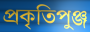
প্রকৃতিপুঞ্জ